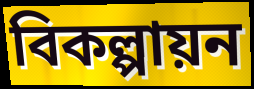
বিকল্পায়ন